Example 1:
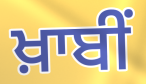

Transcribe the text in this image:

ਖ਼ਾਬੀਂ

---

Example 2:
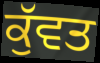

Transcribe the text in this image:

ਕੁੱਵਤ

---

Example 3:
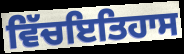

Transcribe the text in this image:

ਵਿੱਚਇਤਿਹਾਸ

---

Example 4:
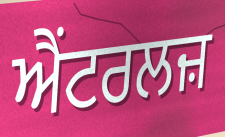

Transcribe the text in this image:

ਐਂਟਰਲਜ਼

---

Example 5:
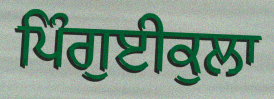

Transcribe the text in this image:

ਪਿੰਗੁਈਕੁਲਾ